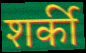
शर्की